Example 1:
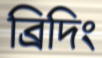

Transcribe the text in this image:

ব্রিদিং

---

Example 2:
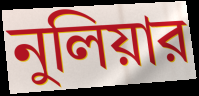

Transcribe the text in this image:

নুলিয়ার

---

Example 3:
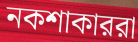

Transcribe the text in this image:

নকশাকাররা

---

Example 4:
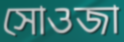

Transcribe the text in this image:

সোওজা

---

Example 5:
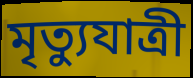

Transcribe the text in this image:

মৃত্যুযাত্রী